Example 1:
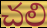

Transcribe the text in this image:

చలి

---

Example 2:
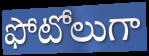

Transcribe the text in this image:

ఫోటోలుగా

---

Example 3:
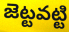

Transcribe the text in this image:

జెట్టవట్టి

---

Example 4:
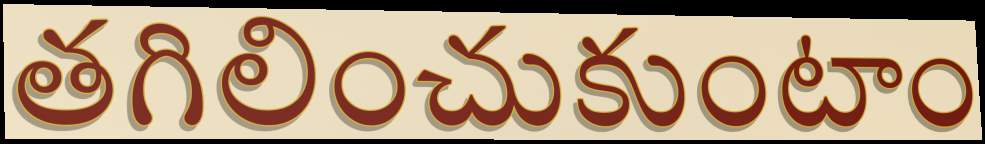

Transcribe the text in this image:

తగిలించుకుంటాం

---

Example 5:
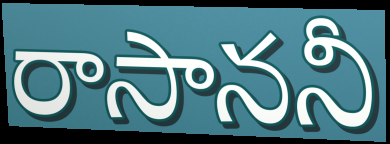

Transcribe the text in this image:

రాసాననీ